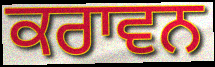
ਕਰਾਵਨ